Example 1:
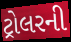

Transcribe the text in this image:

ટ્રોલરની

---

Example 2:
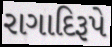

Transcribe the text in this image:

રાગાદિરૂપે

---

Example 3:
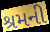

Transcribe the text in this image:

શ્રમની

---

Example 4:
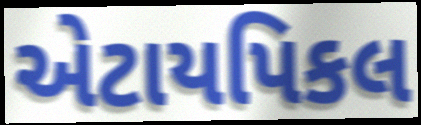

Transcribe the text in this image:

એટાયપિકલ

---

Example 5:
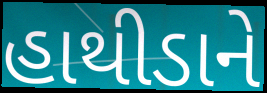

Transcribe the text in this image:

હાથીડાને